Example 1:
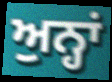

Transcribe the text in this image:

ਅੁਨ੍ਹਾਂ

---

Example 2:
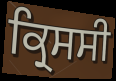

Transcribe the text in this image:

ਕ੍ਰਿਸਸੀ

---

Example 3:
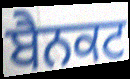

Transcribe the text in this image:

ਬੈਨਕਟ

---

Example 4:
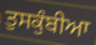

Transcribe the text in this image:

ਤੁਸਕੁੰਬੀਆ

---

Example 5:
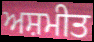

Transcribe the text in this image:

ਅਸ਼ਮੀਤ